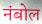
नंबोल